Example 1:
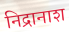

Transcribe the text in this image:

निद्रानाश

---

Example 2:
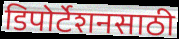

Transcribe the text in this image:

डिपोर्टेशनसाठी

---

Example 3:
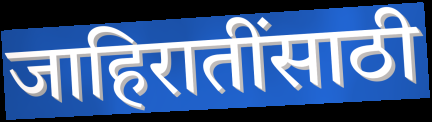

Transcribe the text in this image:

जाहिरातींसाठी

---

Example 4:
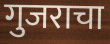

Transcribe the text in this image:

गुजराचा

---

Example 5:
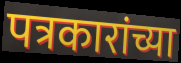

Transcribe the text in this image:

पत्रकारांच्या